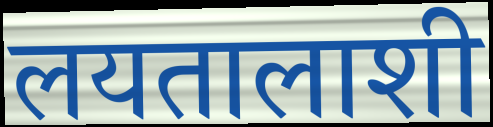
लयतालाशी